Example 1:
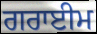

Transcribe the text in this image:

ਗਰਾਈਮ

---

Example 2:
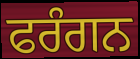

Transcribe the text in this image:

ਫਰੰਗਨ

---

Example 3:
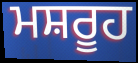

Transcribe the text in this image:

ਮਸ਼ਰੂਹ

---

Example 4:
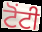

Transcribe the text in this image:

ਟੋਂਟੀ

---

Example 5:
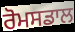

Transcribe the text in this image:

ਰੋਮਸਡਾਲ